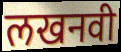
लखनवी